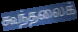
கூந்தலைக்